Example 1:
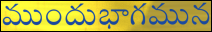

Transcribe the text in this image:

ముందుభాగమున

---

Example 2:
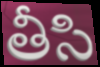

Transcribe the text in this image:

తీసి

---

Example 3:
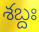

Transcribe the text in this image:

శబ్దః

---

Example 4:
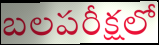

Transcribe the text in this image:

బలపరీక్షలో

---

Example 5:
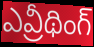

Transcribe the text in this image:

ఎవ్రీథింగ్